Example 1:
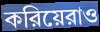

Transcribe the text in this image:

করিয়েরাও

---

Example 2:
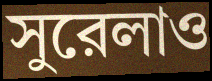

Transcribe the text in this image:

সুরেলাও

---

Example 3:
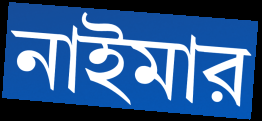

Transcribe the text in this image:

নাইমার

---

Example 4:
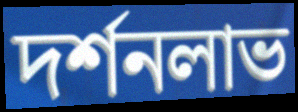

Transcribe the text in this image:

দর্শনলাভ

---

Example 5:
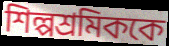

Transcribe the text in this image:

শিল্পশ্রমিককে